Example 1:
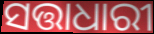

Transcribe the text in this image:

ସତ୍ତାଧାରୀ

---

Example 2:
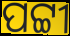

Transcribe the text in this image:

ପଟ୍ଟୀ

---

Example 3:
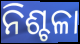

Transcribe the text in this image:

ନିଶ୍ଚଳା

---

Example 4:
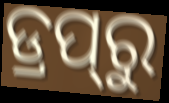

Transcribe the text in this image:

ଡ୍ରପ୍‍ରୁ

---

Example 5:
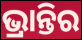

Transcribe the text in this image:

ଭ୍ରାନ୍ତିର